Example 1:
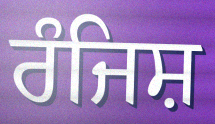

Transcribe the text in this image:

ਰੰਜਿਸ਼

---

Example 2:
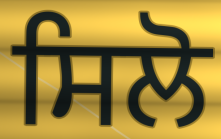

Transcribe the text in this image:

ਸਿਲੋ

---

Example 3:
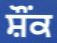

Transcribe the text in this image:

ਸ਼ੌੰਕ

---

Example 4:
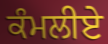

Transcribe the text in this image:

ਕੰਮਲੀਏ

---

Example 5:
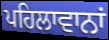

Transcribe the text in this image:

ਪਹਿਲਾਵਾਨਾਂ